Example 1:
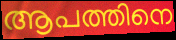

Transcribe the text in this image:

ആപത്തിനെ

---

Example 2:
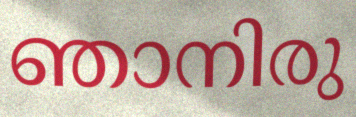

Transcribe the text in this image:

ഞാനിരു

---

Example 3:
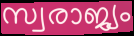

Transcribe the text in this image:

സ്വരാജ്യം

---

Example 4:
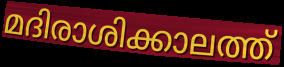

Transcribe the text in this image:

മദിരാശിക്കാലത്ത്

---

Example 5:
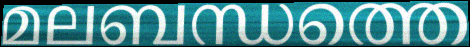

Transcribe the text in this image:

മലബന്ധത്തെ